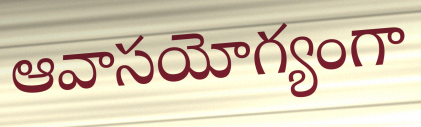
ఆవాసయోగ్యంగా